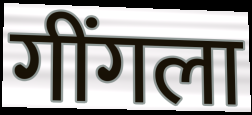
गींगला